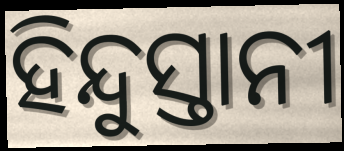
ହିନ୍ଦୁସ୍ତାନୀ